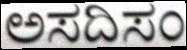
ಅಸದಿಸಂ